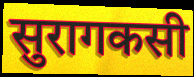
सुरागकसी